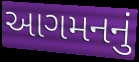
આગમનનું